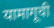
यामागूची